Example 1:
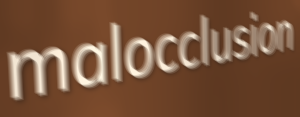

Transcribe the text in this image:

malocclusion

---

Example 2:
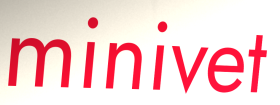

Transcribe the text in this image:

minivet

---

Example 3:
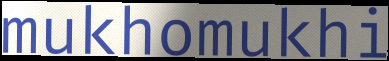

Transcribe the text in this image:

mukhomukhi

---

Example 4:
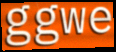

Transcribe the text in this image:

ggwe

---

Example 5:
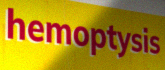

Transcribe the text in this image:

hemoptysis